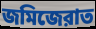
জমিজেরাত